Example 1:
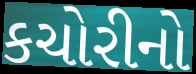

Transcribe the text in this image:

કચોરીનો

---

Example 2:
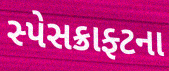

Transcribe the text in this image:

સ્પેસક્રાફ્ટના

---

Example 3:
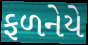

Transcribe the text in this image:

ફળનેયે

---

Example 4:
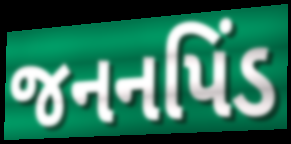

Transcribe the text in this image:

જનનપિંડ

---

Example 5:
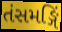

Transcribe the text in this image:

તંસમઙ્ગિં